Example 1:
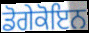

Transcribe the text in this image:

ਡੋਗੇਕੋਇਨ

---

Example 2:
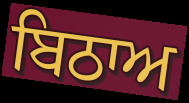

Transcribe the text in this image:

ਬਿਠਾਅ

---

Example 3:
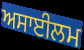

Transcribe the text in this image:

ਅਸਾਈਲਮ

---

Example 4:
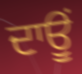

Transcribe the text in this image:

ਦਾਊਂ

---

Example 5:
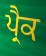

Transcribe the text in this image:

ਪ੍ਰੈਕ